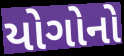
યોગોનો